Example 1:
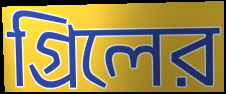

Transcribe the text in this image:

গ্রিলের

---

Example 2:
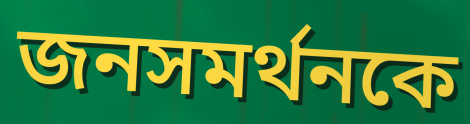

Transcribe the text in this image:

জনসমর্থনকে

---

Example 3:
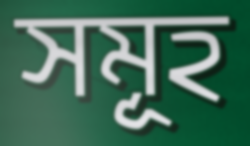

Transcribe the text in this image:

সমূহ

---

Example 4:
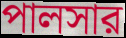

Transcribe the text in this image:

পালসার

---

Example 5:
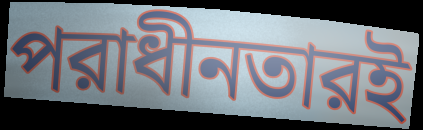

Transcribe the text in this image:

পরাধীনতারই